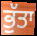
ਭੁੱਤਾ